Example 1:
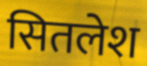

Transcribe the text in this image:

सितलेश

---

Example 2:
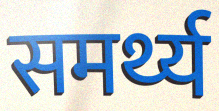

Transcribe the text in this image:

समर्थ्य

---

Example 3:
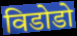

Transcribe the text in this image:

विडोडो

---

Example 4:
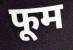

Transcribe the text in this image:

फूम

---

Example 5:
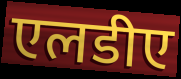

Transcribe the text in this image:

एलडीए